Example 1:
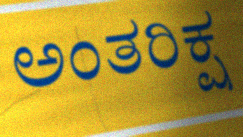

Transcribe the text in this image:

ಅಂತರಿಕ್ಷ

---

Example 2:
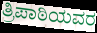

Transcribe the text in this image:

ತ್ರಿಪಾಠಿಯವರ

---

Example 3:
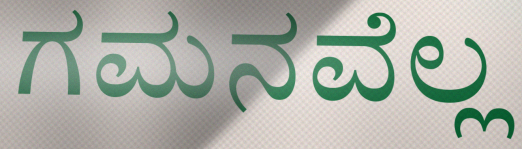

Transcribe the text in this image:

ಗಮನವೆಲ್ಲ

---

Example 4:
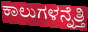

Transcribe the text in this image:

ಕಾಲುಗಳನ್ನೆತ್ತಿ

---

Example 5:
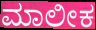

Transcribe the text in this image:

ಮಾಲೀಕ